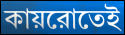
কায়রোতেই